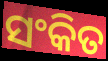
ସଂକିତ